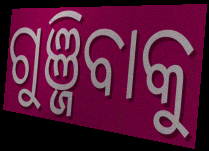
ଗୁଞ୍ଜିବାକୁ